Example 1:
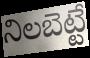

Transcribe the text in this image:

నిలబెట్టే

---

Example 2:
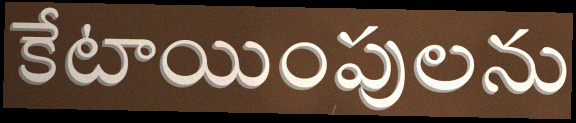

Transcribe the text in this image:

కేటాయింపులను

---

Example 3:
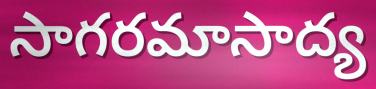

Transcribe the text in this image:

సాగరమాసాద్య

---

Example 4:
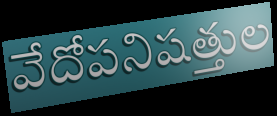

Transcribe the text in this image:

వేదోపనిషత్తుల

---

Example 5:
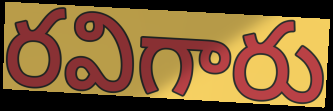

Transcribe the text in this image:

రవిగారు